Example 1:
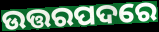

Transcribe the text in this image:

ଉତ୍ତରପଦରେ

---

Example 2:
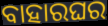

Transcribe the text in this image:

ବାହାରଘର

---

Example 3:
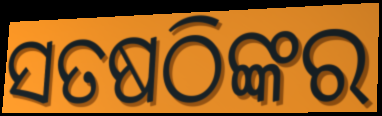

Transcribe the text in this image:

ସତଷଠିଙ୍କର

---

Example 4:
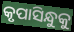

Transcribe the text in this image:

କୃପାସିନ୍ଧୁକୁ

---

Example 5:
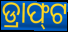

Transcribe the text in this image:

ଡ୍ରାଫ୍‍ଟ